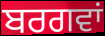
ਬਰਗਵਾਂ